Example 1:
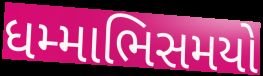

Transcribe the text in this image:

ધમ્માભિસમયો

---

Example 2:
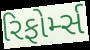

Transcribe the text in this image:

રિફોર્મ્સ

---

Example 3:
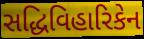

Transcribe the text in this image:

સદ્ધિવિહારિકેન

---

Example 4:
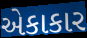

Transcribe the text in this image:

એકાકાર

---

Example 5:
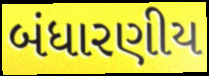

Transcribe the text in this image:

બંધારણીય